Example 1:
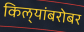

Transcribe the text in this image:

किल्यांबरोबर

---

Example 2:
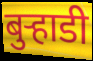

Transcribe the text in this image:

बुऱ्हाडी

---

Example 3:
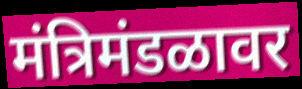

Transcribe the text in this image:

मंत्रिमंडळावर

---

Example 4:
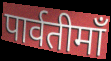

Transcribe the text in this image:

पार्वतीमाँ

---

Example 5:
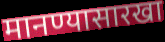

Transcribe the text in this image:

मानण्यासारखा